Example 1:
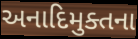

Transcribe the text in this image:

અનાદિમુક્તના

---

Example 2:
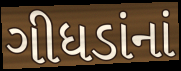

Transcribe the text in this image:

ગીધડાંનાં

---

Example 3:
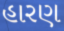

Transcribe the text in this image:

હારણ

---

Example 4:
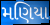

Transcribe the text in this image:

મણિયા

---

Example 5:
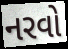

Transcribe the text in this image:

નરવો